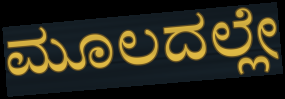
ಮೂಲದಲ್ಲೇ